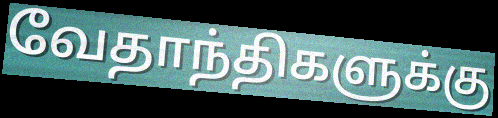
வேதாந்திகளுக்கு